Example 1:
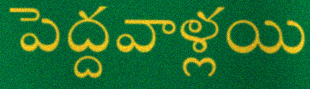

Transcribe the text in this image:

పెద్దవాళ్లయి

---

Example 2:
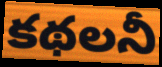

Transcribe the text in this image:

కథలనీ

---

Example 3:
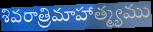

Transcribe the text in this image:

శివరాత్రిమాహాత్మ్యము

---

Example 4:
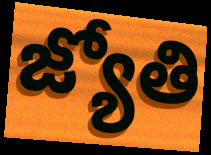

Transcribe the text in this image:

జ్యోతి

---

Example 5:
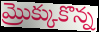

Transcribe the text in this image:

మ్రొక్కుకొన్న